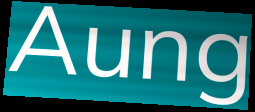
Aung